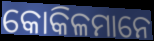
କୋକିଳମାନେ